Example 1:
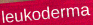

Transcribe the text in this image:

leukoderma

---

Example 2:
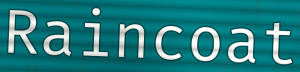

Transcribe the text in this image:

Raincoat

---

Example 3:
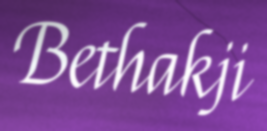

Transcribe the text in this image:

Bethakji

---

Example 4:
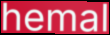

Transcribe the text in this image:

hemal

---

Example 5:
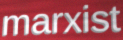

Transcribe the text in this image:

marxist